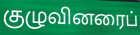
குழுவினரைப்